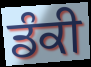
ਡੰਕੀ